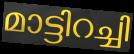
മാട്ടിറച്ചി